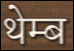
थेम्ब